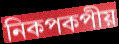
নিকপকপীয়